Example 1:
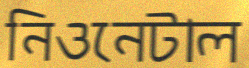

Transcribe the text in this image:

নিওনেটাল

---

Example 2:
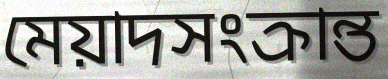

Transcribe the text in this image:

মেয়াদসংক্রান্ত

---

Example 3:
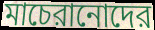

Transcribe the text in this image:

মাচেরানোদের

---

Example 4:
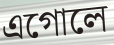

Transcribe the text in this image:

এগোলে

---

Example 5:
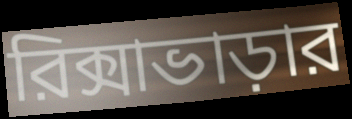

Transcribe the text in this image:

রিক্সাভাড়ার